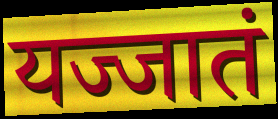
यज्जातं